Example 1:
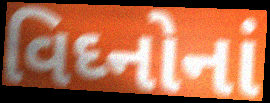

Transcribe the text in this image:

વિઘ્નોનાં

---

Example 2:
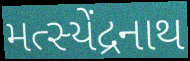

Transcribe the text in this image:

મત્સ્યેંદ્રનાથ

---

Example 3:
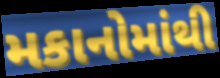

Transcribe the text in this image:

મકાનોમાંથી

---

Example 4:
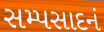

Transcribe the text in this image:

સમ્પસાદનં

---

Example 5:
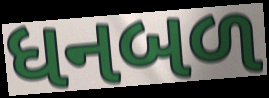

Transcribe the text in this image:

ધનબળ